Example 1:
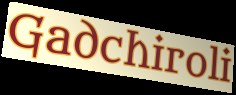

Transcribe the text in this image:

Gadchiroli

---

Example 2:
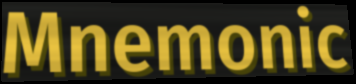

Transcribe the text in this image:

Mnemonic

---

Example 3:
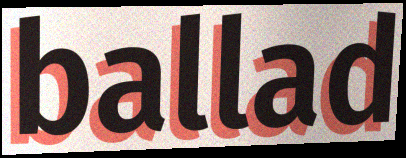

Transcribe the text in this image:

ballad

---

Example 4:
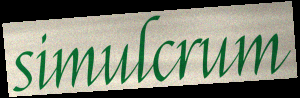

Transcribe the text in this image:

simulcrum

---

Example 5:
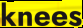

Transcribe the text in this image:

knees